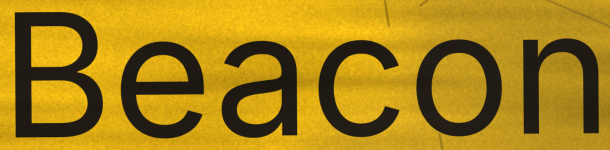
Beacon